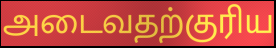
அடைவதற்குரிய